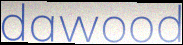
dawood